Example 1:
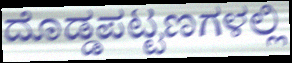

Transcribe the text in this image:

ದೊಡ್ಡಪಟ್ಟಣಗಳಲ್ಲಿ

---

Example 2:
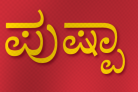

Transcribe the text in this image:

ಪುಷ್ಪಾ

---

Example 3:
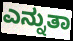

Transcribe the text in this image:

ಎನ್ನುತಾ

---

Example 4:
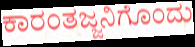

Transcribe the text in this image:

ಕಾರಂತಜ್ಜನಿಗೊಂದು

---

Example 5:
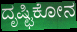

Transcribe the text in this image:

ದೃಷ್ಟಿಕೋನ